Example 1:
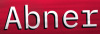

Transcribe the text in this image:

Abner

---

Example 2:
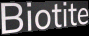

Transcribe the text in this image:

Biotite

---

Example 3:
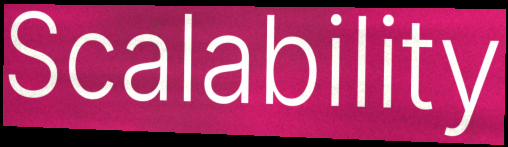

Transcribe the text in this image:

Scalability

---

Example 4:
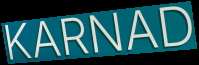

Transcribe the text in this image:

KARNAD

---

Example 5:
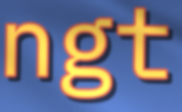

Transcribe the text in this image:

ngt